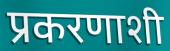
प्रकरणाशी